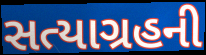
સત્યાગ્રહની